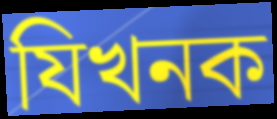
যিখনক